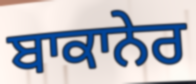
ਬਾਕਾਨੇਰ